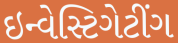
ઇન્વેસ્ટિગેટીંગ